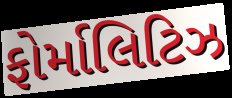
ફોર્માલિટિઝ